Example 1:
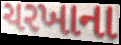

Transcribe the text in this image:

ચરખાના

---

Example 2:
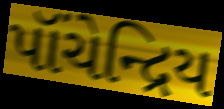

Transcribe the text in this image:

પૉંચેન્દ્રિય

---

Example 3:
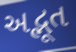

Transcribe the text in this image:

અદ્ભૂત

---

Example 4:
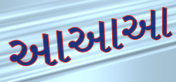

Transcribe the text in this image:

આઆઆ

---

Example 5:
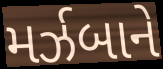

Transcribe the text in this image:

મર્ઝબાને